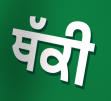
ਥੱਕੀ